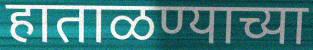
हाताळण्याच्या